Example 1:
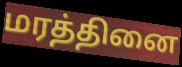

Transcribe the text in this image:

மரத்தினை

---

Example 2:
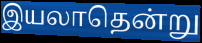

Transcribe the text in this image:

இயலாதென்று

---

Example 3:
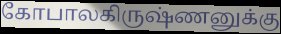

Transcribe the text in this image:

கோபாலகிருஷ்ணனுக்கு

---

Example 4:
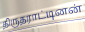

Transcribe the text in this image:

திருதராட்டினன்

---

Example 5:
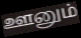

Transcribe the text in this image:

ஊனும்